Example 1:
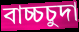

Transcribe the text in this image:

বাচ্চচুদা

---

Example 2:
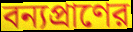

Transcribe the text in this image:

বন্যপ্রাণের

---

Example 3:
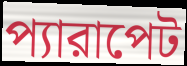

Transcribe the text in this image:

প্যারাপেট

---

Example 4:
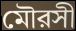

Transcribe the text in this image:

মৌরসী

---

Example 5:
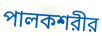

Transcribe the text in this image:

পালকশরীর